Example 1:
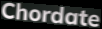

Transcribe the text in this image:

Chordate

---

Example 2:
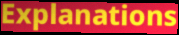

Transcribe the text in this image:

Explanations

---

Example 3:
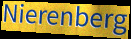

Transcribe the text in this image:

Nierenberg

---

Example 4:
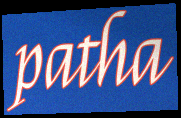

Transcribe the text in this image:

patha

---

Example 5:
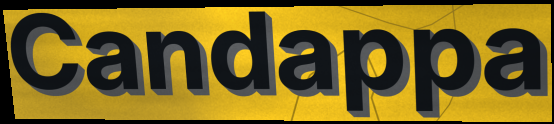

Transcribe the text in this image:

Candappa